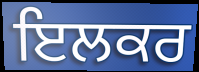
ਇਲਕਰ